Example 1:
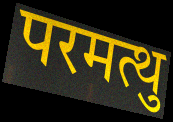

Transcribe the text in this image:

परमत्थु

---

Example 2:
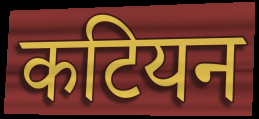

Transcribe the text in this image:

कटियन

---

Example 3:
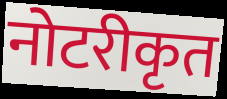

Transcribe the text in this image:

नोटरीकृत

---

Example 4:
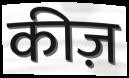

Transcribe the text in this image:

कीज़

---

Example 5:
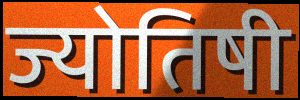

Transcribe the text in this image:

ज्योतिषी